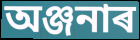
অঞ্জনাৰ